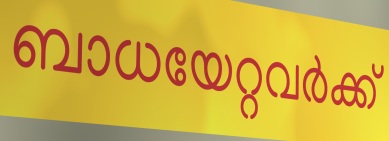
ബാധയേറ്റവർക്ക്